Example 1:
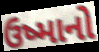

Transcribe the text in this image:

ઉષ્માનો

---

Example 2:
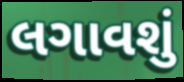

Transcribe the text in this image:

લગાવશું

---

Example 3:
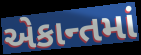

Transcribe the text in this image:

એકાન્તમાં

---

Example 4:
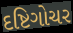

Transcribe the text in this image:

દષ્ટિગોચર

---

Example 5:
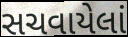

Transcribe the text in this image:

સચવાયેલાં